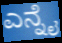
ಎನ್ನೈ